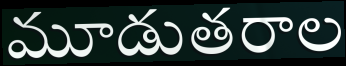
మూడుతరాల